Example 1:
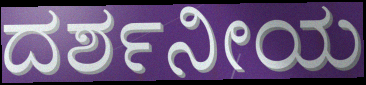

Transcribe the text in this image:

ದರ್ಶನೀಯ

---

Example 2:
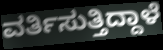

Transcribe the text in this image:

ವರ್ತಿಸುತ್ತಿದ್ದಾಳೆ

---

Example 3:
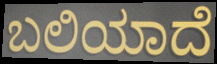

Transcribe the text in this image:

ಬಲಿಯಾದೆ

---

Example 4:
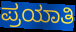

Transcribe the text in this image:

ಪ್ರಯಾತಿ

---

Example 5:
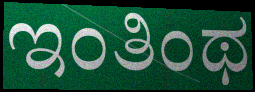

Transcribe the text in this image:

ಇಂತಿಂಥ